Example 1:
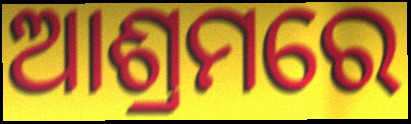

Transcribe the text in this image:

ଆଶ୍ରମରେ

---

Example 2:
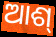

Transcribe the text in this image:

ଆଶ୍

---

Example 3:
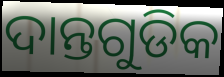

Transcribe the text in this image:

ଦାନ୍ତଗୁଡିକ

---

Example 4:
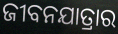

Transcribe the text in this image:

ଜୀବନଯାତ୍ରାର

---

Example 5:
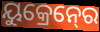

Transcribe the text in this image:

ୟୁକ୍ରେନ୍‍ରେ